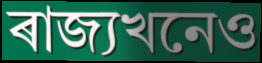
ৰাজ্যখনেও